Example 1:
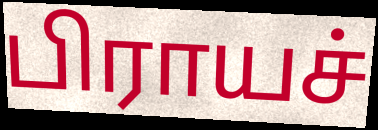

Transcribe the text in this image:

பிராயச்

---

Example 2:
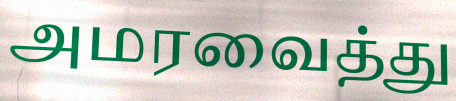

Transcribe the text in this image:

அமரவைத்து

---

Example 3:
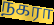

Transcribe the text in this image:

நகரா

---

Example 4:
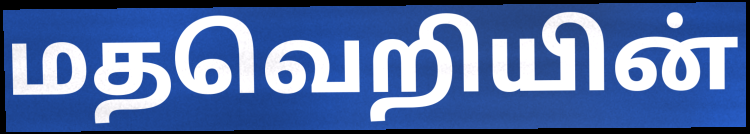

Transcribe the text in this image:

மதவெறியின்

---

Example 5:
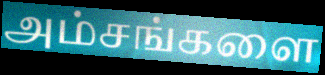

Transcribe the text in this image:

அம்சங்களை